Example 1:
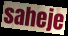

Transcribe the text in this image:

saheje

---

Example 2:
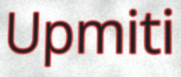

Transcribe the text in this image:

Upmiti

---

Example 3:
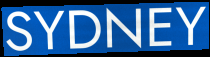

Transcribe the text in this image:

SYDNEY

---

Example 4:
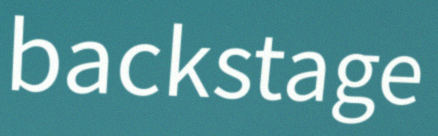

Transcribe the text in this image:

backstage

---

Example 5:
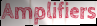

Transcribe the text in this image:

Amplifiers